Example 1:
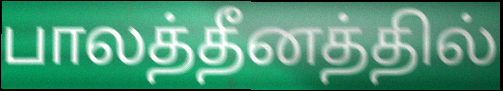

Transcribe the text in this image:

பாலத்தீனத்தில்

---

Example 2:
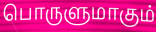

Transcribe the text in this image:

பொருளுமாகும்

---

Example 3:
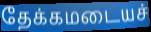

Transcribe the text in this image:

தேக்கமடையச்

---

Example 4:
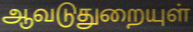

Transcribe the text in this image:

ஆவடுதுறையுள்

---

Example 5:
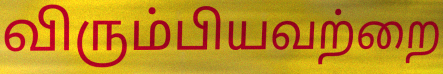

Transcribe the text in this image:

விரும்பியவற்றை